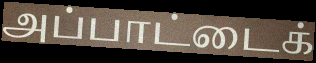
அப்பாட்டைக்